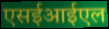
एसईआईएल